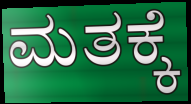
ಮತಕ್ಕೆ